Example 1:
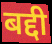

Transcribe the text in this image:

बद्दी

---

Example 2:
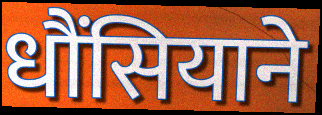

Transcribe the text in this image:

धौंसियाने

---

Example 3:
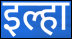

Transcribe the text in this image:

इल्हा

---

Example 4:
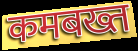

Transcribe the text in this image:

कमबख्त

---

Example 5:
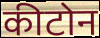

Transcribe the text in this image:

कीटोन